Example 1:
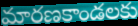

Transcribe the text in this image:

మారణకాండలకు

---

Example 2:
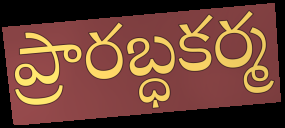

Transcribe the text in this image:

ప్రారబ్ధకర్మ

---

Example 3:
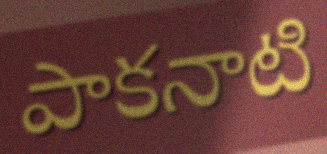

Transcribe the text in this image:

పాకనాటి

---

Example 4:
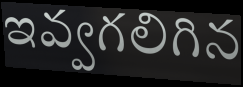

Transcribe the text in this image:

ఇవ్వగలిగిన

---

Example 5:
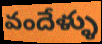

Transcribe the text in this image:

వందేళ్ళు